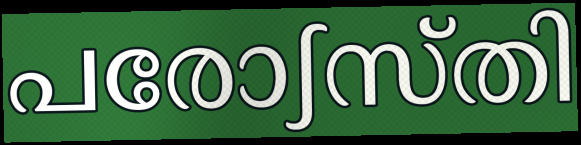
പരോഽസ്തി